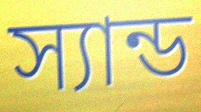
স্যান্ড